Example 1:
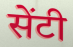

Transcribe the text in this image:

सेंटी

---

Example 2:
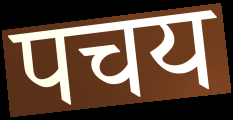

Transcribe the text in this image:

पचय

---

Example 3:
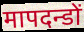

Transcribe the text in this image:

मापदन्डों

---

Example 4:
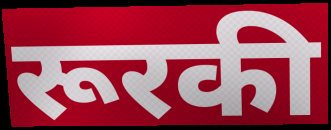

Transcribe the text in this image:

रूरकी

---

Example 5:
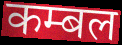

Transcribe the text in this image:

कम्बल